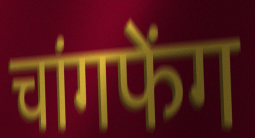
चांगफेंग